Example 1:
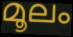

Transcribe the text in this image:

മൂലം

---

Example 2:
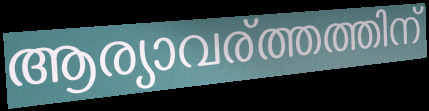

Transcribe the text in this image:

ആര്യാവര്ത്തത്തിന്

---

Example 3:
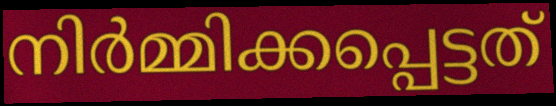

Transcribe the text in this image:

നിർമ്മിക്കപ്പെട്ടത്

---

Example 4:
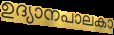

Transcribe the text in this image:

ഉദ്യാനപാലകാ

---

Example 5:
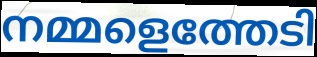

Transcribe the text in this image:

നമ്മളെത്തേടി